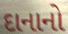
દાનાનો